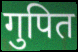
गुपित